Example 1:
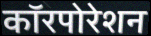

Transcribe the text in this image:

कॉरपोरेशन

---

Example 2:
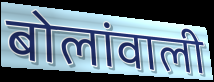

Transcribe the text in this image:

बोलांवाली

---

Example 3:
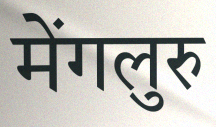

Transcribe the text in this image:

मेंगलुरु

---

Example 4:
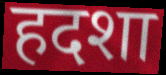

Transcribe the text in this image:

हदशा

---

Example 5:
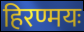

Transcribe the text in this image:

हिरण्मयः